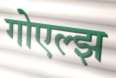
गोएल्झ